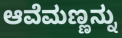
ಆವೆಮಣ್ಣನ್ನು